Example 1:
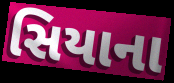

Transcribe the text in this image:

સિયાના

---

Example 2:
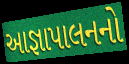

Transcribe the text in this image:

આજ્ઞાપાલનનો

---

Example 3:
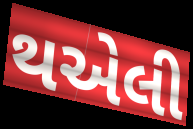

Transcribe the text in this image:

થએલી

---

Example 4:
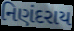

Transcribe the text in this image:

નિણંદરાય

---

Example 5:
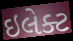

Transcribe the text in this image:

ઇલેક્ટ